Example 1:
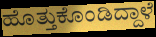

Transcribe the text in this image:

ಹೊತ್ತುಕೊಂಡಿದ್ದಾಳೆ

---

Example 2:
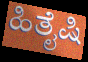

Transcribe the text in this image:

ಹಿತೈಷಿ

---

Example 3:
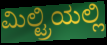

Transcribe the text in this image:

ಮಿಲ್ಟ್ರಿಯಲ್ಲಿ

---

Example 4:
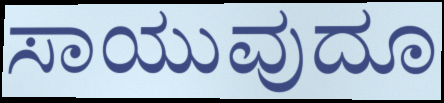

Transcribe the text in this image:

ಸಾಯುವುದೂ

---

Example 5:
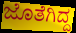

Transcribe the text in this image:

ಜೊತೆಗಿದ್ದ